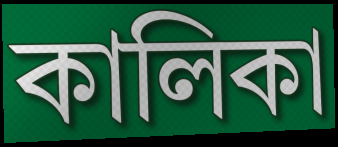
কালিকা